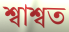
শ্বাশ্বত